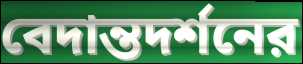
বেদান্তদর্শনের